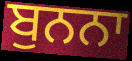
ਬੁਨਨਾ